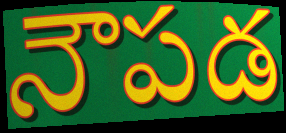
నౌపడ